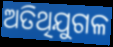
ଅତିଥିଯୁଗଳ